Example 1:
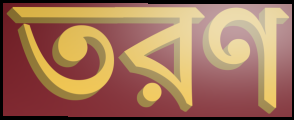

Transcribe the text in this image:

তরণ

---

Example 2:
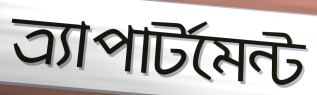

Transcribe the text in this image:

ত্র্যাপার্টমেন্ট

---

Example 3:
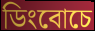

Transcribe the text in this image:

ডিংবোচে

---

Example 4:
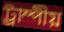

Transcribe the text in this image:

ট্রাম্পীয়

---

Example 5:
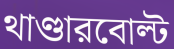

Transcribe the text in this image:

থাণ্ডারবোল্ট